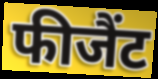
फीजैंट